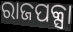
ରାଜପକ୍ସା